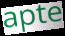
apte